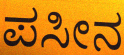
ಪಸೀನ